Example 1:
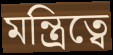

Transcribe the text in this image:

মন্ত্রিত্বে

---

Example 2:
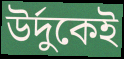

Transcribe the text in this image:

উর্দুকেই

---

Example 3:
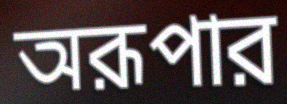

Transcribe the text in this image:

অরূপার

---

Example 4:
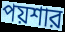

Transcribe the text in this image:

পয়শার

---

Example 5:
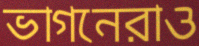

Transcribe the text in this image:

ভাগনেরাও